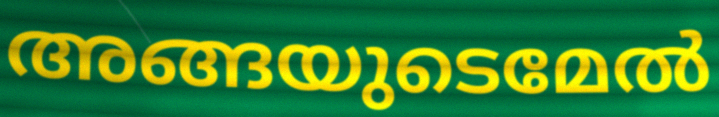
അങ്ങയുടെമേൽ